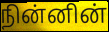
நின்னின்